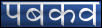
पबकव